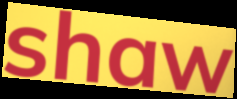
shaw